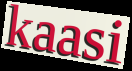
kaasi